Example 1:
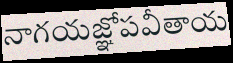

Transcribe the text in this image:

నాగయజ్ఞోపవీతాయ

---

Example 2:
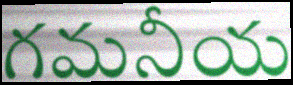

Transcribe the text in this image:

గమనీయ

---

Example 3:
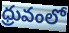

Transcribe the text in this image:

ధ్రువంలో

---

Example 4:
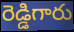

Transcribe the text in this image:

రెడ్డిగారు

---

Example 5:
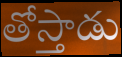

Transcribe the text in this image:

తోస్తాడు